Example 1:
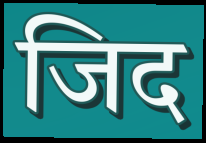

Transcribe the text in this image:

जिद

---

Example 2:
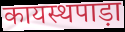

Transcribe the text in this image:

कायस्थपाड़ा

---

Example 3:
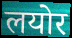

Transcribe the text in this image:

लयोर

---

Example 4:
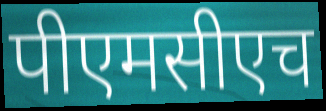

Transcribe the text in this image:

पीएमसीएच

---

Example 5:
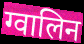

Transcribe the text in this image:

ग्वालिन